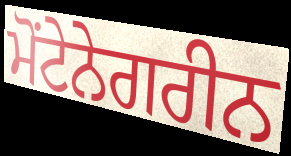
ਮੋਂਟੇਨੇਗਰੀਨ